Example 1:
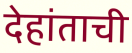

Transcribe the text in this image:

देहांताची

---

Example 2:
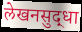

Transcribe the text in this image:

लेखनसुद्धा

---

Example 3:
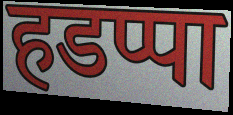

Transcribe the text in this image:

हडप्पा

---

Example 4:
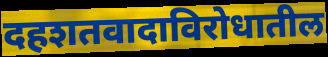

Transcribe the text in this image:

दहशतवादाविरोधातील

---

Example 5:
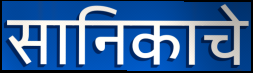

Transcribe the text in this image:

सानिकाचे